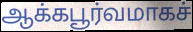
ஆக்கபூர்வமாகச்